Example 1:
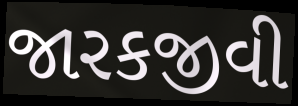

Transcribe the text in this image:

જારકજીવી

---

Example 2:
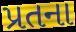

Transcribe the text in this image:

પ્રતના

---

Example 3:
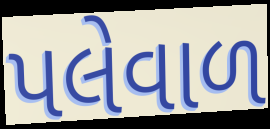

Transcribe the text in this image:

પલેવાળ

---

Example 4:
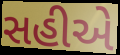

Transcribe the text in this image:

સહીએ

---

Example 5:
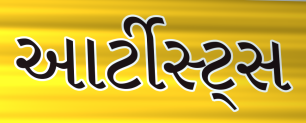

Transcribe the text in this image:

આર્ટીસ્ટ્સ